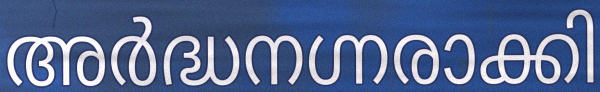
അർദ്ധനഗ്നരാക്കി